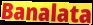
Banalata